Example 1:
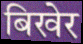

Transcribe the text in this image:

बिखेर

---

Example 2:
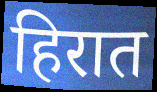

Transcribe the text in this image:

हिरात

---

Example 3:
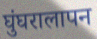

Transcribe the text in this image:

घुंघरालापन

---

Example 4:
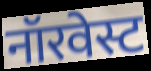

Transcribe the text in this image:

नॉरवेस्ट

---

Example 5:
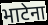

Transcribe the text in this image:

भाटेना